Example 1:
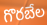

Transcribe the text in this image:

గొరబేల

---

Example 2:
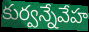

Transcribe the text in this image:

కుర్వన్నేవేహ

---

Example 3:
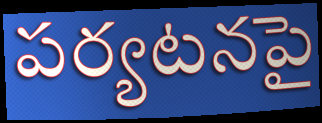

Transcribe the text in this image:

పర్యటనపై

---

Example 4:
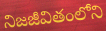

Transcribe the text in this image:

నిజజీవితంలోని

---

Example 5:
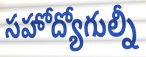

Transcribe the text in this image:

సహోద్యోగుల్నీ